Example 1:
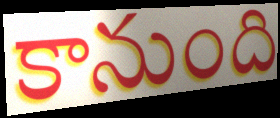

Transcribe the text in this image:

కానుంది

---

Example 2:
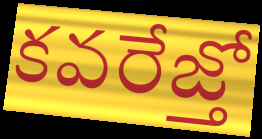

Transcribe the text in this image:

కవరేజ్తో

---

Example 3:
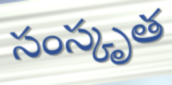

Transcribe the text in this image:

సంస్కృత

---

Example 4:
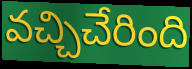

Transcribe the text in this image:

వచ్చిచేరింది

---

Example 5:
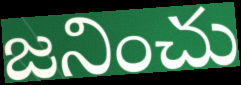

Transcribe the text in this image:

జనించు